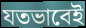
যতভাবেই